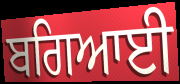
ਬਗਿਆਈ